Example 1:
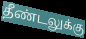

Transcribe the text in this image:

தீண்டலுக்கு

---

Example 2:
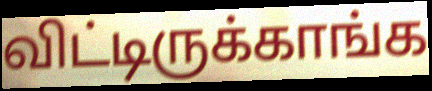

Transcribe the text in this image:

விட்டிருக்காங்க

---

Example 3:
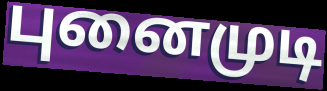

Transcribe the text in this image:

புனைமுடி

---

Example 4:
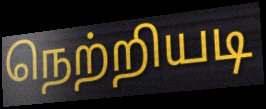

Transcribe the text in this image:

நெற்றியடி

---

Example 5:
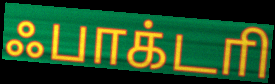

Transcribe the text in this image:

ஃபாக்டரி